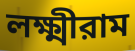
লক্ষ্মীরাম